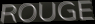
ROUGE